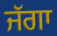
ਜੱਗਾ